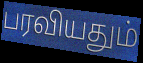
பரவியதும்